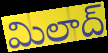
మిలాద్